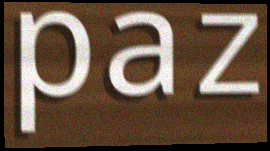
paz